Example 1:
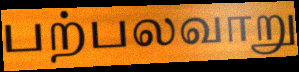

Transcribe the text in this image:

பற்பலவாறு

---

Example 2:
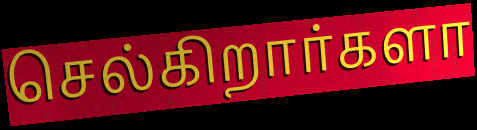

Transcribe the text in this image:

செல்கிறார்களா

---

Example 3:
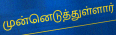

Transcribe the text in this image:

முன்னெடுத்துள்ளார்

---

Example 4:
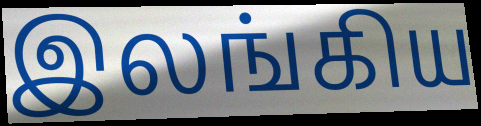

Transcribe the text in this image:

இலங்கிய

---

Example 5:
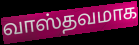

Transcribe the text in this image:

வாஸ்தவமாக